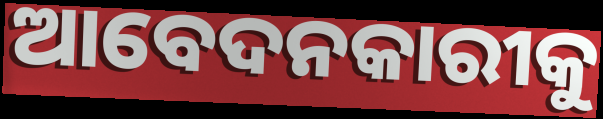
ଆବେଦନକାରୀକୁ